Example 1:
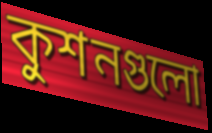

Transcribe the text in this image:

কুশনগুলো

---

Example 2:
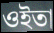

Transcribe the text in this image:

ওইতা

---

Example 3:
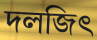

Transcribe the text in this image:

দলজিৎ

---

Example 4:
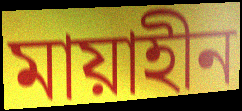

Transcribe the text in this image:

মায়াহীন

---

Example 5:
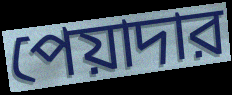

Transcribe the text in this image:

পেয়াদার